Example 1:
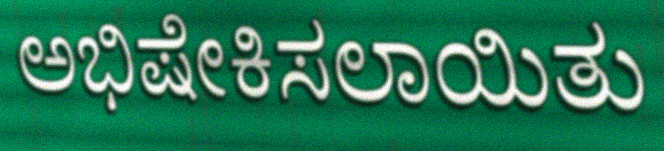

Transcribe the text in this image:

ಅಭಿಷೇಕಿಸಲಾಯಿತು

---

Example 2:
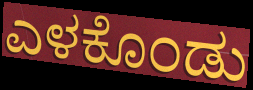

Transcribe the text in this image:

ಎಳಕೊಂಡು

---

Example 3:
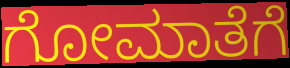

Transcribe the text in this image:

ಗೋಮಾತೆಗೆ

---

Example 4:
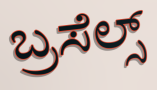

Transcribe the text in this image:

ಬ್ರಸೆಲ್ಸ್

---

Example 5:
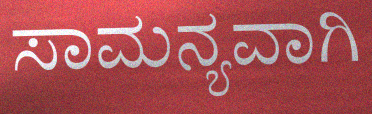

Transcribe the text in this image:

ಸಾಮನ್ಯವಾಗಿ